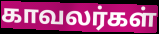
காவலர்கள்